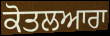
ਕੋਤਲਆਰਾ